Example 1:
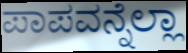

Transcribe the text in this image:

ಪಾಪವನ್ನೆಲ್ಲಾ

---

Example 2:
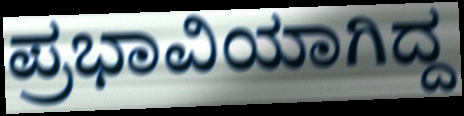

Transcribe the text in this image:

ಪ್ರಭಾವಿಯಾಗಿದ್ದ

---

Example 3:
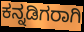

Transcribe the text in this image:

ಕನ್ನಡಿಗರಾಗಿ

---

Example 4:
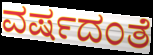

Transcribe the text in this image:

ವರ್ಷದಂತೆ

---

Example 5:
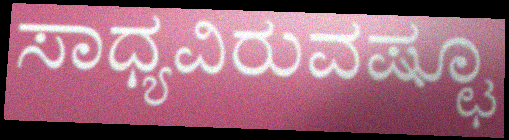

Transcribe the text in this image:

ಸಾಧ್ಯವಿರುವಷ್ಟೂ